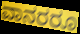
ವಾನರರೂ